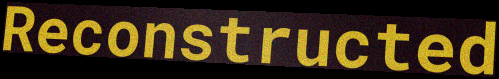
Reconstructed